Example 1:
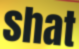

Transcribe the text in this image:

shat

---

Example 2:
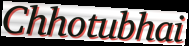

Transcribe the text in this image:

Chhotubhai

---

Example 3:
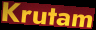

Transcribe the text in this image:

Krutam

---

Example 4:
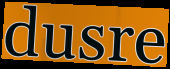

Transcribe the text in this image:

dusre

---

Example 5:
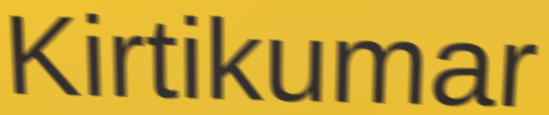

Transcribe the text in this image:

Kirtikumar